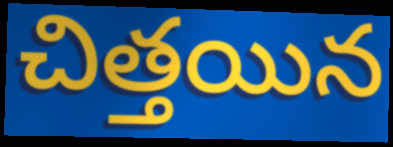
చిత్తయిన